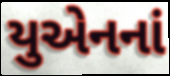
યુએનનાં